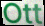
Ott